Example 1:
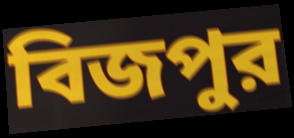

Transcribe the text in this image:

বিজপুর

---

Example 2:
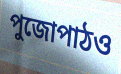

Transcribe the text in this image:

পুজোপাঠও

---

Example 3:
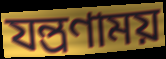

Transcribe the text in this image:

যন্ত্রণাময়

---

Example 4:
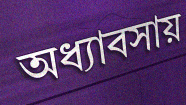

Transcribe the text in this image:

অধ্যাবসায়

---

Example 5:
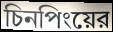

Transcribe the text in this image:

চিনপিংয়ের